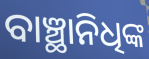
ବାଞ୍ଛାନିଧିଙ୍କ